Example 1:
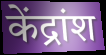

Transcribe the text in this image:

केंद्रांश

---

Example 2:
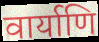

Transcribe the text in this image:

वार्याणि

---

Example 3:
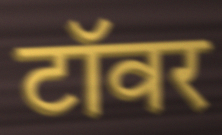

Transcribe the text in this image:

टॉवर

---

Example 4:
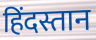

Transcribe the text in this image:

हिंदस्तान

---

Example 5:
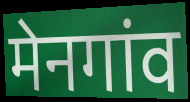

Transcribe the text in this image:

मेनगांव